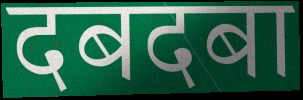
दबदबा